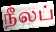
நீலப்